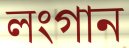
লংগান